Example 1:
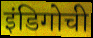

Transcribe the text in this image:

इंडिगोची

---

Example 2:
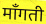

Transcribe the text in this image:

माँगती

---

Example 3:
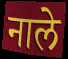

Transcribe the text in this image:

नाले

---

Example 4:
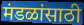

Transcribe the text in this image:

मंडळांसाठी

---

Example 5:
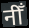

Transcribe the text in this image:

नीँ